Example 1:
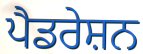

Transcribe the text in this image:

ਪੈਡਰੇਸ਼ਨ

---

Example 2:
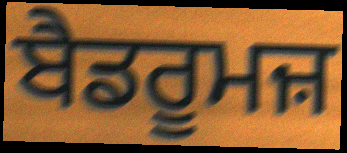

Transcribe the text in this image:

ਬੈਡਰੂਮਜ਼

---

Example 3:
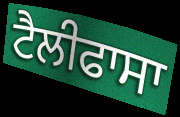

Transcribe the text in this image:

ਟੈਲੀਫਾਸਾ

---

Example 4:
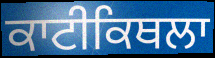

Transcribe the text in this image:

ਕਾਟੀਕਿਥਲਾ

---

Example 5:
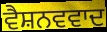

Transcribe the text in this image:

ਵੈਸ਼ਨਵਵਾਦ